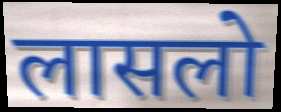
लासलो